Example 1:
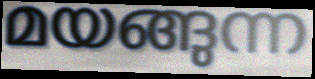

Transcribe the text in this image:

മയങ്ങുന്ന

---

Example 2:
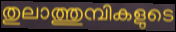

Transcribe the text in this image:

തുലാത്തുമ്പികളുടെ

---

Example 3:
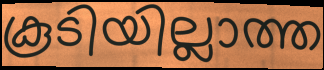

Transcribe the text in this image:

കൂടിയില്ലാത്ത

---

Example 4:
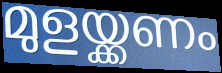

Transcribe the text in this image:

മുളയ്ക്കണം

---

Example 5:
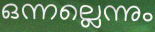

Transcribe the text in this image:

ഒന്നല്ലെന്നും